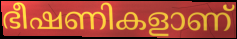
ഭീഷണികളാണ്